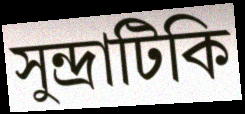
সুন্দ্রাটিকি